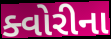
ક્વોરીના